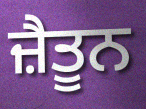
ਜ਼ੈਤੂਨ